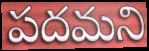
పదమని